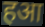
हआ